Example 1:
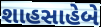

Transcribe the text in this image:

શાહસાહેબે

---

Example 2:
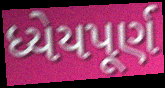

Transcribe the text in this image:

ધ્યેયપૂર્ણ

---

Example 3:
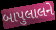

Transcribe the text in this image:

બાપુલાલને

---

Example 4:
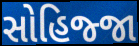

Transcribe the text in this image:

સોહિજ્જા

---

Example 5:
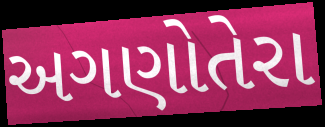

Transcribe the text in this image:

અગણોતેરા